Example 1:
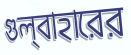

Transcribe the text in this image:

গুল্‌বাহারের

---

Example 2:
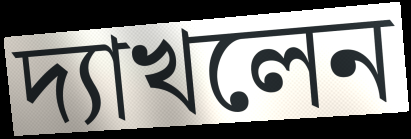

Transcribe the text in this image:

দ্যাখলেন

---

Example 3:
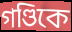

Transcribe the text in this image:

গণ্ডিকে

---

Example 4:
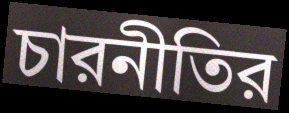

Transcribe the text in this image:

চারনীতির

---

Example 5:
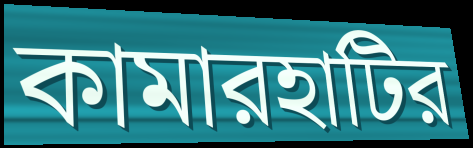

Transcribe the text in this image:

কামারহাটির